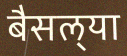
बैसल्या